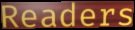
Readers